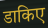
डाकिए